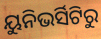
ୟୁନିଭର୍ସିଟିରୁ